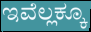
ಇವೆಲ್ಲಕ್ಕೂ